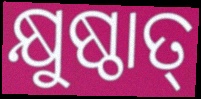
କ୍ଷୁଷ୍ଠାତ୍